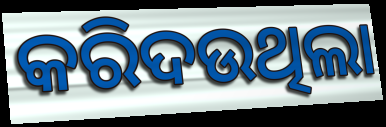
କରିଦଉଥିଲା